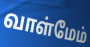
வாள்மேம்